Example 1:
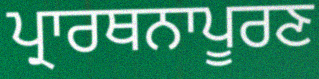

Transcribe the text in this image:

ਪ੍ਰਾਰਥਨਾਪੂਰਣ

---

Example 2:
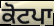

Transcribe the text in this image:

ਕੋਟਪਾ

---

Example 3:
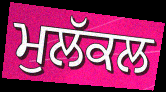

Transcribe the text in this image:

ਮੁਲੱਕਲ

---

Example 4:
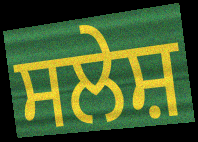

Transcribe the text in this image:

ਸਲੇਸ਼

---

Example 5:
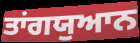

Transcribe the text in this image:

ਤਾਂਗਯੁਆਨ